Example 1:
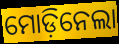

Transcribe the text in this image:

ମୋଡ଼ିନେଲା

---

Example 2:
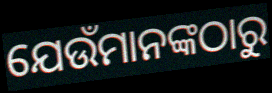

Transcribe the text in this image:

ଯେଉଁମାନଙ୍କଠାରୁ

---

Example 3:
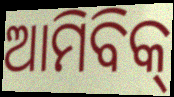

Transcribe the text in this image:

ଆମିବିକ୍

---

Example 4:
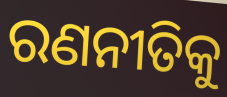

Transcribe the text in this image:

ରଣନୀତିକୁ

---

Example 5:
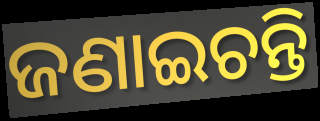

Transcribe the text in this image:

ଜଣାଇଚନ୍ତି